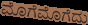
ಮೊಗೆಮೊಗೆದು